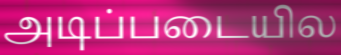
அடிப்படையில